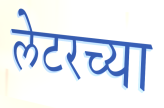
लेटरच्या